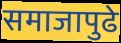
समाजापुढे